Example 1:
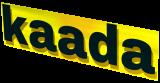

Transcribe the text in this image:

kaada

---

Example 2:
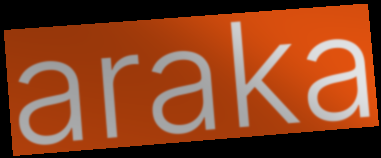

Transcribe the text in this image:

araka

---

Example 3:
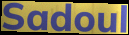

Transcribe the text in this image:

Sadoul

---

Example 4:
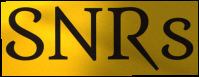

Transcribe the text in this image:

SNRs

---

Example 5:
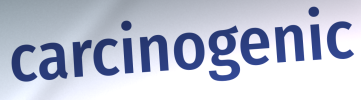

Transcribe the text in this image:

carcinogenic